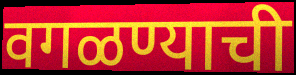
वगळण्याची